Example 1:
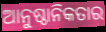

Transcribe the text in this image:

ଆନୁଷ୍ଠାନିକତାର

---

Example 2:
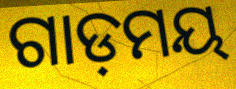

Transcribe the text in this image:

ଗାଡ଼ମୟ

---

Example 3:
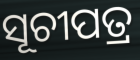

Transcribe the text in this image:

ସୂଚୀପତ୍ର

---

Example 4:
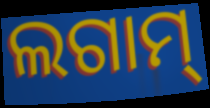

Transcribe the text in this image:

ଲଗାମ୍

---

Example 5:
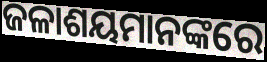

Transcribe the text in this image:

ଜଳାଶୟମାନଙ୍କରେ